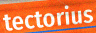
tectorius